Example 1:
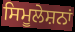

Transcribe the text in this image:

ਸਿਮੂਲੇਸ਼ਨਾਂ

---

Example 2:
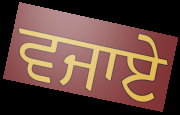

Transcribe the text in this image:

ਵਜਾਏ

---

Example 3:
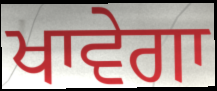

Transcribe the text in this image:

ਖਾਵੇਗਾ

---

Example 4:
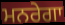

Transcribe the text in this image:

ਮਨਰੇਗਾ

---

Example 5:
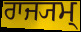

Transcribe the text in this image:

ਰਾਜ੍ਯਮ੍